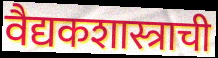
वैद्यकशास्त्राची